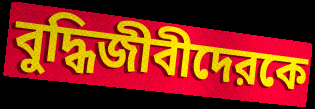
বুদ্ধিজীবীদেরকে